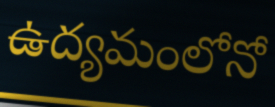
ఉద్యమంలోనో